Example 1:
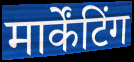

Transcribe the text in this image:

मार्केंटिंग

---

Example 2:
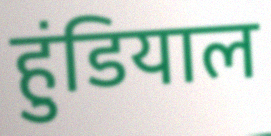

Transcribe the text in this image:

हुंडियाल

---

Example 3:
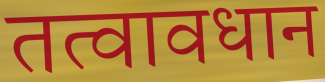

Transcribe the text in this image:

तत्वावधान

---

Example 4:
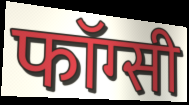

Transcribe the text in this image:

फॉग्सी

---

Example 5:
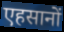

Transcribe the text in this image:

एहसानों